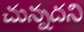
చున్నదని